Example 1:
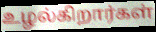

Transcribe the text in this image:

உழல்கிறார்கள்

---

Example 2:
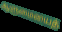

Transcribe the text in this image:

ஆளுமையைத்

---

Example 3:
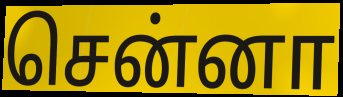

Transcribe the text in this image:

சென்னா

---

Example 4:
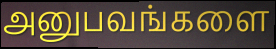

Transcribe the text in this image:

அனுபவங்களை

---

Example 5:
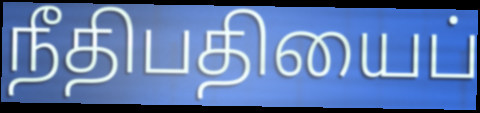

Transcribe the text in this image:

நீதிபதியைப்